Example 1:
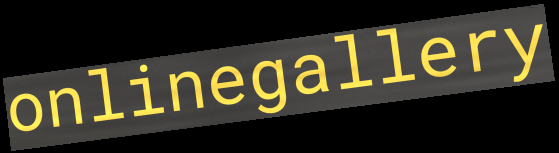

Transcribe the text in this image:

onlinegallery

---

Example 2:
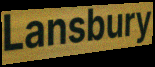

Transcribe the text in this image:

Lansbury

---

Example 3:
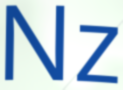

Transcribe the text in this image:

Nz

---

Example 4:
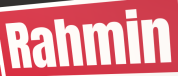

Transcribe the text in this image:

Rahmin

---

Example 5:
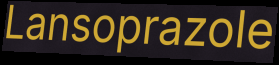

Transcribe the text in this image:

Lansoprazole